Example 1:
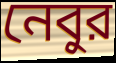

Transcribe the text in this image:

নেবুর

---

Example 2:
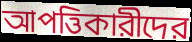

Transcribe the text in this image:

আপত্তিকারীদের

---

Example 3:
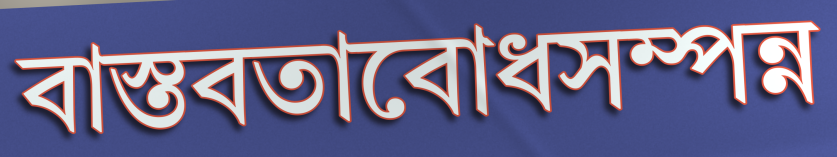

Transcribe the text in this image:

বাস্তবতাবোধসম্পন্ন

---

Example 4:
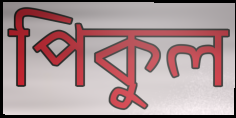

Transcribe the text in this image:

পিকুল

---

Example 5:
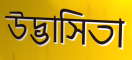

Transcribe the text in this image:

উদ্ভাসিতা